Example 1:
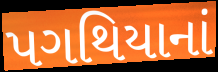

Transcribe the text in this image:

પગથિયાનાં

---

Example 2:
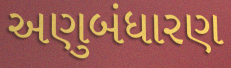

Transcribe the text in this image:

અણુબંધારણ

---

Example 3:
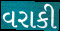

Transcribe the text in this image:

વરાકી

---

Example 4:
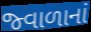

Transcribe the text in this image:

જ્વાળાનાં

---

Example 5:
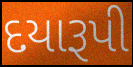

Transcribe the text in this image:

દયારૂપી